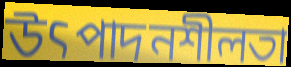
উৎপাদনশীলতা